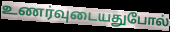
உணர்வுடையதுபோல்